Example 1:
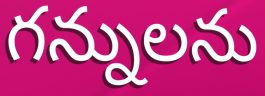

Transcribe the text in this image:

గన్నులను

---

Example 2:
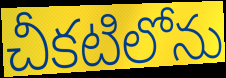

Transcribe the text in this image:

చీకటిలోను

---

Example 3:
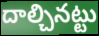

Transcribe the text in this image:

దాల్చినట్టు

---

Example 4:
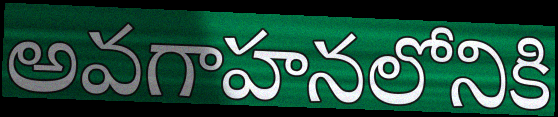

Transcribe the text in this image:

అవగాహనలోనికి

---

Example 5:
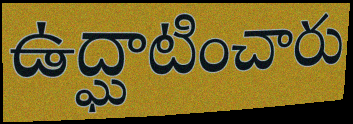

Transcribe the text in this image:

ఉద్ఘాటించారు